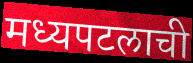
मध्यपटलाची